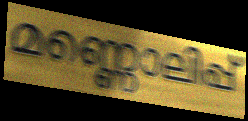
മണ്ണൊലിപ്പ്